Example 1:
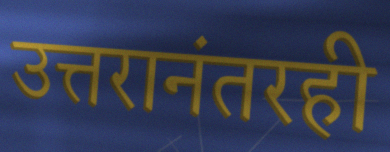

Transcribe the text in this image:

उत्तरानंतरही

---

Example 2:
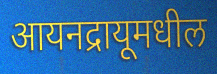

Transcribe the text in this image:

आयनद्रायूमधील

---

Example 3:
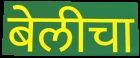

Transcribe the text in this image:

बेलीचा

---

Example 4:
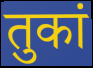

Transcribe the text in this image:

तुकां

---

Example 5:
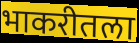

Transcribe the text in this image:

भाकरीतला